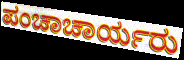
ಪಂಚಾಚಾರ್ಯರು